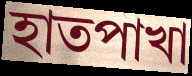
হাতপাখা